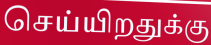
செய்யிறதுக்கு